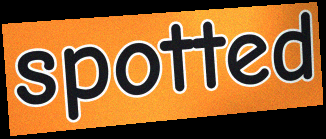
spotted